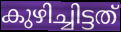
കുഴിച്ചിട്ടത്